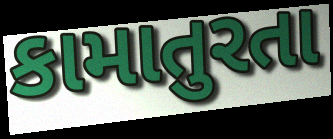
કામાતુરતા